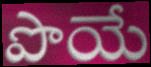
పొయే